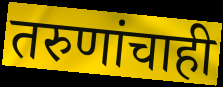
तरुणांचाही